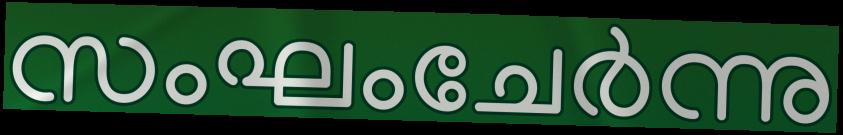
സംഘംചേർന്നു